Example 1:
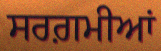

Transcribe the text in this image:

ਸਰਗ਼ਮੀਆਂ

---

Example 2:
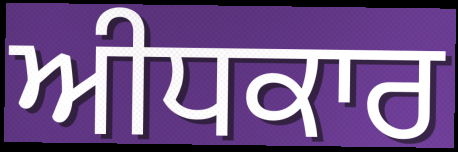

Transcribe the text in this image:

ਅੀਧਕਾਰ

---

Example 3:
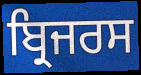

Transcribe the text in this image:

ਬ੍ਰਿਜਰਸ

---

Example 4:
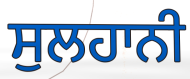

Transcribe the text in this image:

ਸੁਲਹਾਨੀ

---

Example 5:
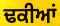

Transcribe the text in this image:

ਢਕੀਆਂ